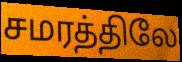
சமரத்திலே